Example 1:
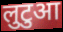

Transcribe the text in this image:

लुटुआ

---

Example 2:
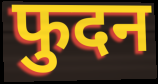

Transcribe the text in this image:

फुदन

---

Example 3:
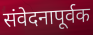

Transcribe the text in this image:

संवेदनापूर्वक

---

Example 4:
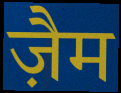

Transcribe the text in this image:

ज़ैम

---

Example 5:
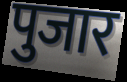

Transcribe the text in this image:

पुजार